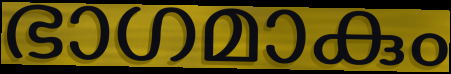
ഭാഗമാകും